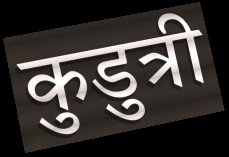
कुडुत्री